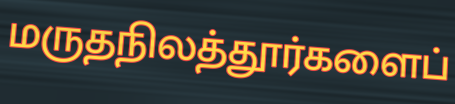
மருதநிலத்தூர்களைப்